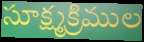
సూక్ష్మక్రిముల